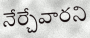
నేర్చేవారని